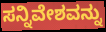
ಸನ್ನಿವೇಶವನ್ನು